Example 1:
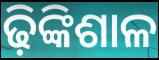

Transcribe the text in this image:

ଢ଼ିଙ୍କିଶାଳ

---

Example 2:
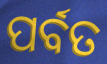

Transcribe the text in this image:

ପର୍ବତ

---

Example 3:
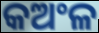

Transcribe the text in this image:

କଅଂଳ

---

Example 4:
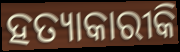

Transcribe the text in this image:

ହତ୍ୟାକାରୀକି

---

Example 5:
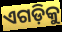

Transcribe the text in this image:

ଏଗଡ଼ିକୁ